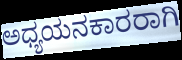
ಅಧ್ಯಯನಕಾರರಾಗಿ